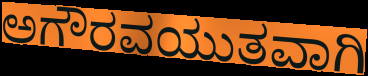
ಅಗೌರವಯುತವಾಗಿ